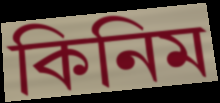
কিনিম